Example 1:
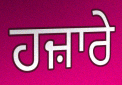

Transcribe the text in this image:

ਹਜ਼ਾਰੇ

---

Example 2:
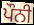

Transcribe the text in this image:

ਪੌਨੀ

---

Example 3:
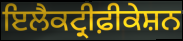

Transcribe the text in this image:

ਇਲੈਕਟ੍ਰੀਫ਼ੀਕੇਸ਼ਨ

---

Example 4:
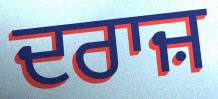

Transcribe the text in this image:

ਦਰਾਜ਼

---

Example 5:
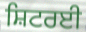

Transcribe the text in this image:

ਸ਼ਿਟਰਈ